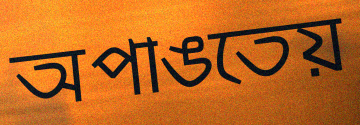
অপাঙতেয়